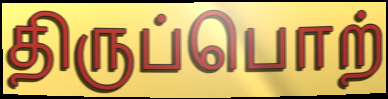
திருப்பொற்